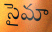
సైమా